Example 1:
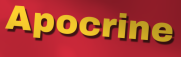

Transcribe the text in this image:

Apocrine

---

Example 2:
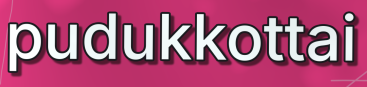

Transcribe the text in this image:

pudukkottai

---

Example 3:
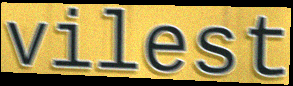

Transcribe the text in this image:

vilest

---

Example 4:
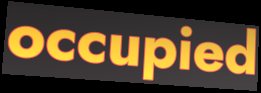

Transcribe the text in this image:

occupied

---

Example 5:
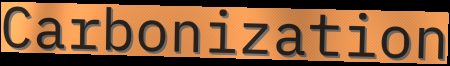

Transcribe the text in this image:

Carbonization